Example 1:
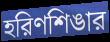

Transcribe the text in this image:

হরিণশিঙার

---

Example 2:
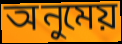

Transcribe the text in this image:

অনুমেয়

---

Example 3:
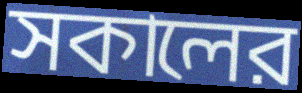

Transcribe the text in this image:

সকালের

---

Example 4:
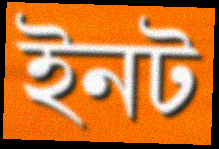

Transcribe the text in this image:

ইনট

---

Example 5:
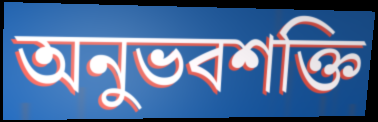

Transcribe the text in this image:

অনুভবশক্তি